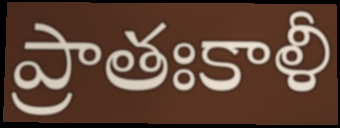
ప్రాతఃకాళీ